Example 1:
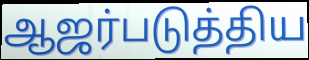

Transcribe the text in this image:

ஆஜர்படுத்திய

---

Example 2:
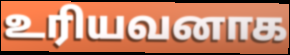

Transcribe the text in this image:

உரியவனாக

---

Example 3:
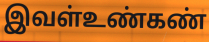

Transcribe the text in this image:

இவள்உண்கண்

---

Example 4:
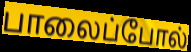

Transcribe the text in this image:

பாலைப்போல்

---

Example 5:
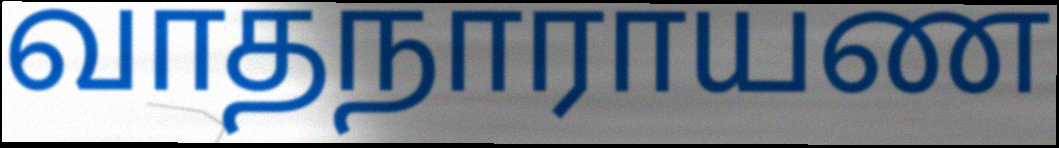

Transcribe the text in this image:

வாதநாராயண